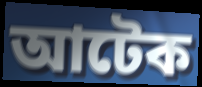
আটেক